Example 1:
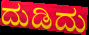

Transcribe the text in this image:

ದುಡಿದು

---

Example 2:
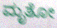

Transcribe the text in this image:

ಮೃತೋ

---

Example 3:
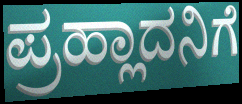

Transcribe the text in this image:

ಪ್ರಹ್ಲಾದನಿಗೆ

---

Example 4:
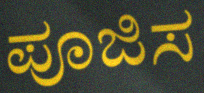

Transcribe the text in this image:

ಪೂಜಿಸ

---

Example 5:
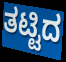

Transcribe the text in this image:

ತಟ್ಟಿದ